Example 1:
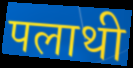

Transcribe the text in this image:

पलाथी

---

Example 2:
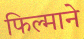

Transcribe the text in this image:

फिल्‍माने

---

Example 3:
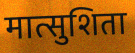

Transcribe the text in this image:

मात्सुशिता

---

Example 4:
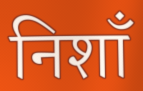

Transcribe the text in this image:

निशाँ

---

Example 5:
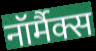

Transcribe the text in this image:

नॉर्मैक्स